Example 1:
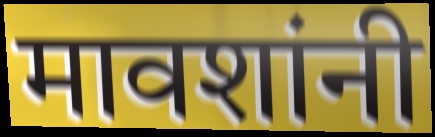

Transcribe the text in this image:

मावशांनी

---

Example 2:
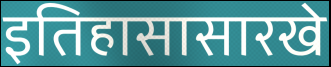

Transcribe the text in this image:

इतिहासासारखे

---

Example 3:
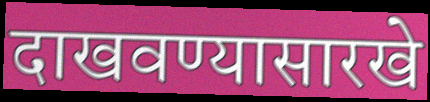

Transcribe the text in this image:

दाखवण्यासारखे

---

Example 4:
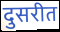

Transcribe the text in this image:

दुसरीत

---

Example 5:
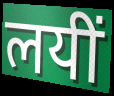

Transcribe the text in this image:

लयीं